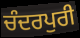
ਚੰਦਰਪੁਰੀ